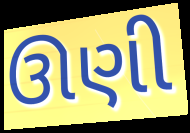
ઊણી